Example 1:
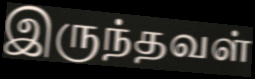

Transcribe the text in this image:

இருந்தவள்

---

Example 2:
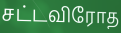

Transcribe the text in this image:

சட்டவிரோத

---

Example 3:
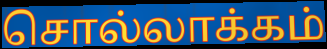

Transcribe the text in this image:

சொல்லாக்கம்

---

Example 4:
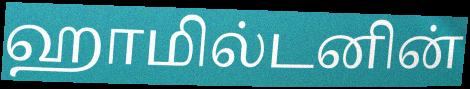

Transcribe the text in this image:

ஹாமில்டனின்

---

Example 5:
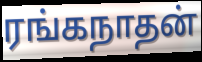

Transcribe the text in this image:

ரங்கநாதன்